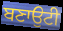
ਬਣਾਉਟੀ